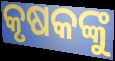
କୃଷକଙ୍କୁ